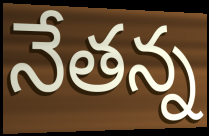
నేతన్న